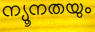
ന്യൂനതയും